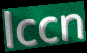
lccn